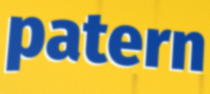
patern